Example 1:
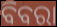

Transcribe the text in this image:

ବିବରା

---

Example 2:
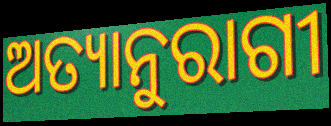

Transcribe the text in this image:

ଅତ୍ୟାନୁରାଗୀ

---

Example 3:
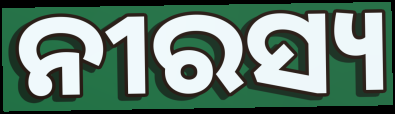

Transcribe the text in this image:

ନୀରସ୍ୟ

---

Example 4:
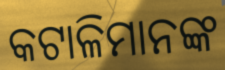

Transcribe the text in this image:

କଟାଳିମାନଙ୍କ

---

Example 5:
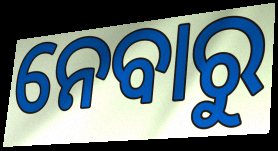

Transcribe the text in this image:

ନେବାରୁ